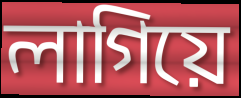
লাগিয়ে